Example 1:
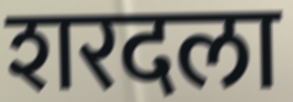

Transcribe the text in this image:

शरदला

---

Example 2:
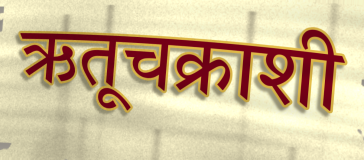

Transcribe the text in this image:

ऋतूचक्राशी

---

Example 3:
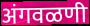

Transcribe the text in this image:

अंगवळणी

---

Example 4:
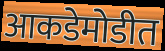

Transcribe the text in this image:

आकडेमोडीत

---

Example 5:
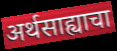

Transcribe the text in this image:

अर्थसाह्याचा